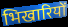
भिखारियों